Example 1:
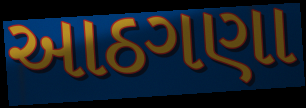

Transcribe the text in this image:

આઠગણા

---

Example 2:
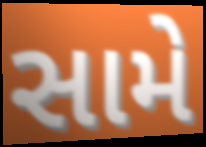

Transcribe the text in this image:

સામે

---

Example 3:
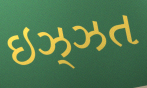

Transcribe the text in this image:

ઇઝ્ઝત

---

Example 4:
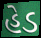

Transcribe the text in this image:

હેડ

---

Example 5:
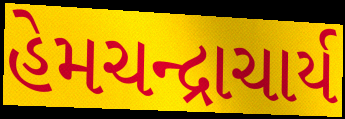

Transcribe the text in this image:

હેમચન્દ્રાચાર્ય